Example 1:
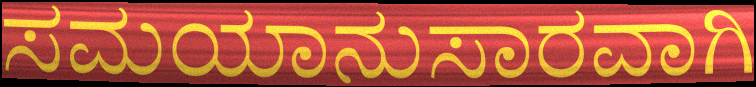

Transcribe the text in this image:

ಸಮಯಾನುಸಾರವಾಗಿ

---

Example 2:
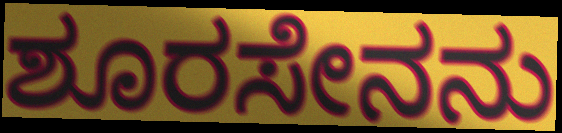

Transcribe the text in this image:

ಶೂರಸೇನನು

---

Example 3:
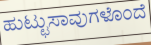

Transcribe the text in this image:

ಹುಟ್ಟುಸಾವುಗಳೊಂದೆ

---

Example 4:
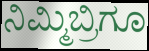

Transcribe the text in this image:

ನಿಮ್ಮಿಬ್ರಿಗೂ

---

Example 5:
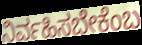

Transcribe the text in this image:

ನಿರ್ವಹಿಸಬೇಕೆಂಬ